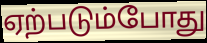
ஏற்படும்போது